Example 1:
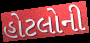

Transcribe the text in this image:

હોટલોની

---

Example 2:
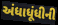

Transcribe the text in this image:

અંધાધૂંધીની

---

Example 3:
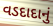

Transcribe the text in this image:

વડદાદાનું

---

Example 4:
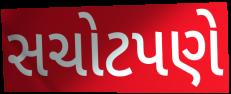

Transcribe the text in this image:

સચોટપણે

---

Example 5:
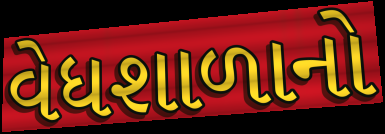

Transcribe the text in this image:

વેધશાળાનો